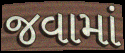
જવામાં